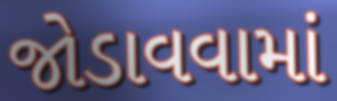
જોડાવવામાં